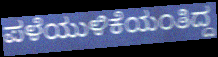
ಪಳೆಯುಳಿಕೆಯಂತಿದ್ದ